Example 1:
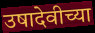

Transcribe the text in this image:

उषादेवीच्या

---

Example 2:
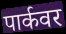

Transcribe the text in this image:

पार्कवर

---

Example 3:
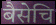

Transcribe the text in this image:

बैसेचि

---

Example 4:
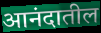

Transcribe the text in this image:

आनंदातील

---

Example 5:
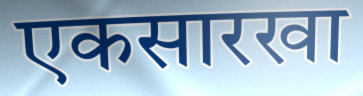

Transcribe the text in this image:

एकसारखा